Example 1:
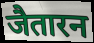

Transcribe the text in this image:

जैतारन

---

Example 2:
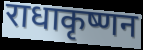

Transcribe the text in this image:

राधाकृष्णन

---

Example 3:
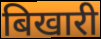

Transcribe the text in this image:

बिखारी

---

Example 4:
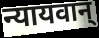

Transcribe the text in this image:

न्यायवान्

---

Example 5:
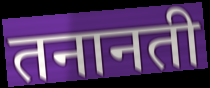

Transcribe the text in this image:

तनानती